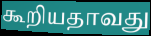
கூறியதாவது